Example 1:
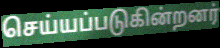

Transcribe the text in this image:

செய்யப்படுகின்றனர்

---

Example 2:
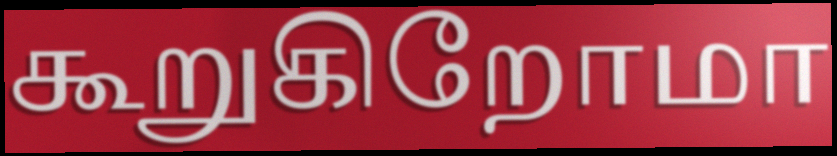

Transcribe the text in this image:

கூறுகிறோமா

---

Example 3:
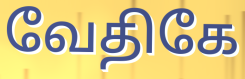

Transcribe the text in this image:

வேதிகே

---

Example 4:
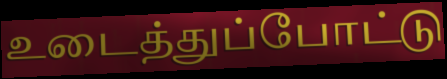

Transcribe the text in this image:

உடைத்துப்போட்டு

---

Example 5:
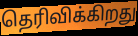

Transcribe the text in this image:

தெரிவிக்கிறது